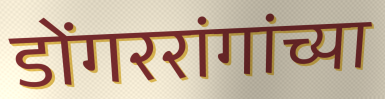
डोंगररांगांच्या